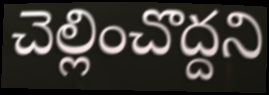
చెల్లించొద్దని